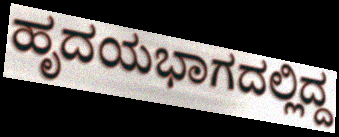
ಹೃದಯಭಾಗದಲ್ಲಿದ್ದ